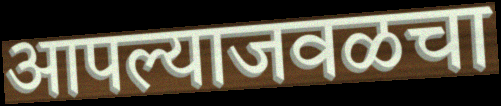
आपल्याजवळचा